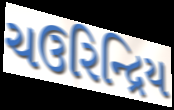
ચઉરિન્દ્રિય